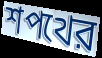
শপথের